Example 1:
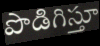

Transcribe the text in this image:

పొడిగిస్తూ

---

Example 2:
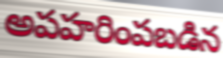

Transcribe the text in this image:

అపహరింపబడిన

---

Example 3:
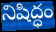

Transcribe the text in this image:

నిషిద్ధం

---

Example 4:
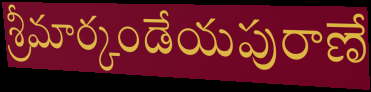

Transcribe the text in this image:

శ్రీమార్కండేయపురాణే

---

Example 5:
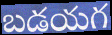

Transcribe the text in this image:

బడయగ